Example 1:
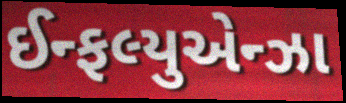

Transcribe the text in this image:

ઈન્ફલ્યુએન્ઝા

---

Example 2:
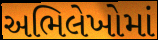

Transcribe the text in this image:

અભિલેખોમાં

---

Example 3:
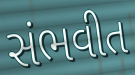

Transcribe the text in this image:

સંભવીત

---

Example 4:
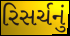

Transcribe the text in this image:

રિસર્ચનું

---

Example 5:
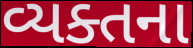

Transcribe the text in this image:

વ્યક્તના